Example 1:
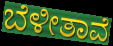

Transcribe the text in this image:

ಬೆಳೀತಾವೆ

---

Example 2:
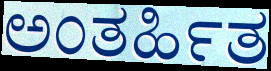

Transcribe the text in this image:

ಅಂತರ್ಹಿತ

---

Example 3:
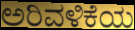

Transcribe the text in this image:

ಅರಿವಳಿಕೆಯ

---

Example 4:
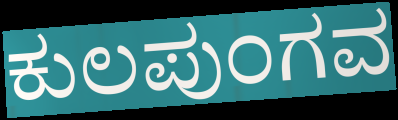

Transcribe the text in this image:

ಕುಲಪುಂಗವ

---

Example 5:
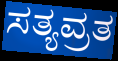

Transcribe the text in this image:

ಸತ್ಯವ್ರತ